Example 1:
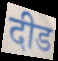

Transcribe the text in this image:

दीड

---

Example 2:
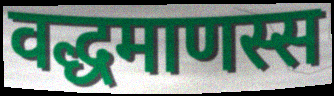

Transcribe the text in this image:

वद्धमाणस्स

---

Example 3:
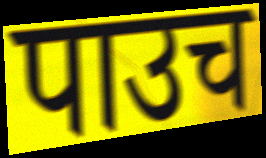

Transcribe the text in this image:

पाउच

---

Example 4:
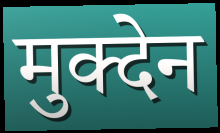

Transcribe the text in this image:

मुक्देन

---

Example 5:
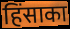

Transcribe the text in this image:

हिंसाका